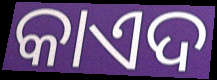
କାଏଦ